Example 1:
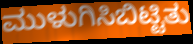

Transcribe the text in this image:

ಮುಳುಗಿಸಿಬಿಟ್ಟಿತು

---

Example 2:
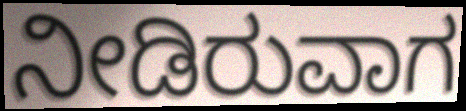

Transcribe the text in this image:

ನೀಡಿರುವಾಗ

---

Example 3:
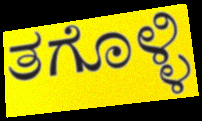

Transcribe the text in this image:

ತಗೊಳ್ಳಿ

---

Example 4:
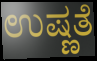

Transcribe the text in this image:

ಉಷ್ಣತೆ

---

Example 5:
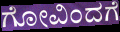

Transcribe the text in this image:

ಗೋವಿಂದಗೆ